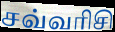
சவ்வரிசி